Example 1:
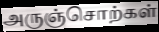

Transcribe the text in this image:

அருஞ்சொற்கள்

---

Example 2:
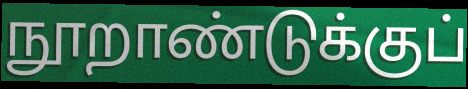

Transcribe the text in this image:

நூறாண்டுக்குப்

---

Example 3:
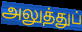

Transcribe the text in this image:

அலுத்துப்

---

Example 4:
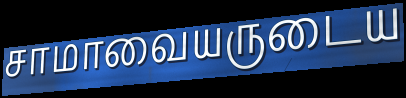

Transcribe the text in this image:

சாமாவையருடைய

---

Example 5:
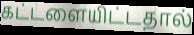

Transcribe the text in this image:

கட்டளையிட்டதால்